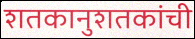
शतकानुशतकांची